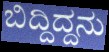
ಬಿದ್ದಿದ್ದನು